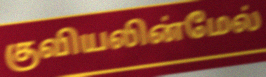
குவியலின்மேல்